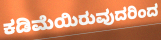
ಕಡಿಮೆಯಿರುವುದರಿಂದ